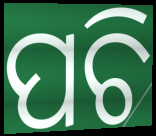
ପଚି